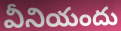
వీనియందు